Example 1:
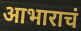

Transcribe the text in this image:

आभाराचं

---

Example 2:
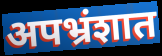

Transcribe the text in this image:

अपभ्रंशात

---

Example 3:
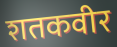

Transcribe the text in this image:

शतकवीर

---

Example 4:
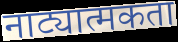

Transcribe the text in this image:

नाट्यात्मकता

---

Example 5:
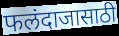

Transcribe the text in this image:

फलंदाजासाठी